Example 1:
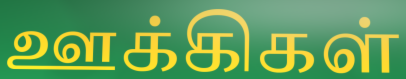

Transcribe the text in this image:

ஊக்கிகள்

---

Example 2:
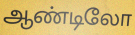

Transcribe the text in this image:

ஆண்டிலோ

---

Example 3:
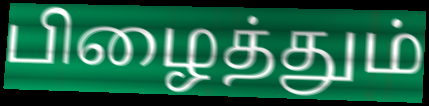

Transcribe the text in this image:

பிழைத்தும்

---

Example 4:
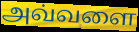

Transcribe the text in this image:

அவ்வளை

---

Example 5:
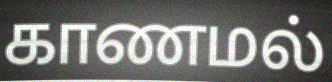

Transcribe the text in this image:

காணமல்